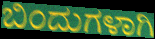
ಬಿಂದುಗಳಾಗಿ